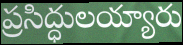
ప్రసిద్ధులయ్యారు